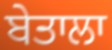
ਬੇਤਾਲਾ